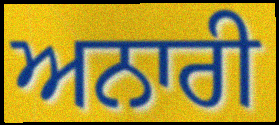
ਅਨਾਰੀ